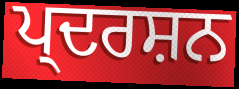
ਪ੍ਦਰਸ਼ਨ